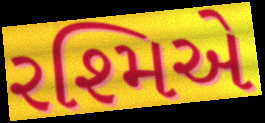
રશ્મિએ